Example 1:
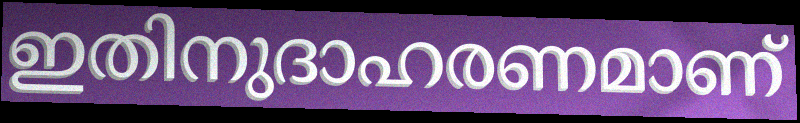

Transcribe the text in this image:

ഇതിനുദാഹരണമാണ്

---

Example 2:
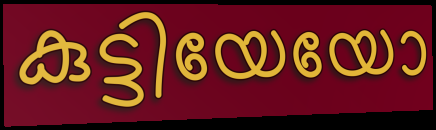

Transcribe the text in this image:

കുട്ടിയേയോ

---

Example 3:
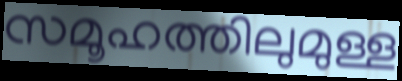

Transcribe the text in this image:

സമൂഹത്തിലുമുള്ള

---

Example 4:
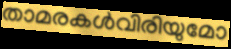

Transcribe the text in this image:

താമരകൾവിരിയുമോ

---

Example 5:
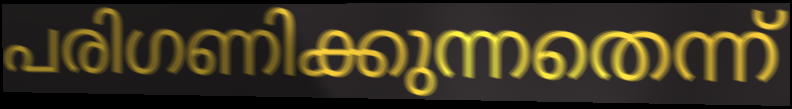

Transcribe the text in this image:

പരിഗണിക്കുന്നതെന്ന്